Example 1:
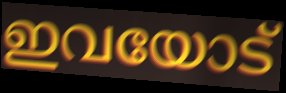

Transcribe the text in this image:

ഇവയോട്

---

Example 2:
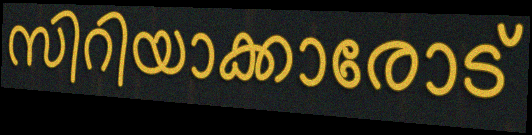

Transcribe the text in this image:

സിറിയാക്കാരോട്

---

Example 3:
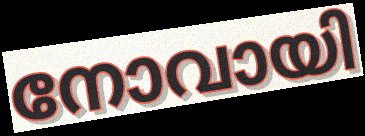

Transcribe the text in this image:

നോവായി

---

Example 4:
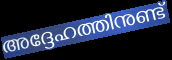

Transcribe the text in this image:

അദ്ദേഹത്തിനുണ്ട്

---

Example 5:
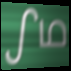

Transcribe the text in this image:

ഽഥ